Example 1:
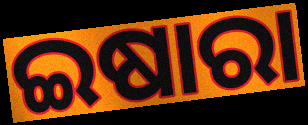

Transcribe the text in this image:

ଇଷାରା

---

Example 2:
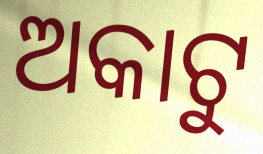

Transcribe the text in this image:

ଅକାଟୁ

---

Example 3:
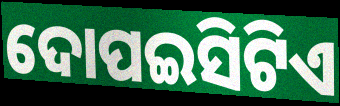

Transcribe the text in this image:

ଦୋପଇସିଟିଏ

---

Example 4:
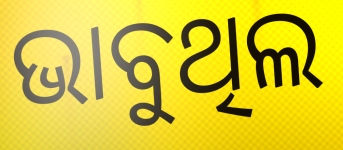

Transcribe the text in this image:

ଭାବୁଥିଲ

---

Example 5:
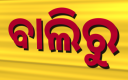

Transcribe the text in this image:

ବାଲିରୁ